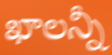
ఖాలన్నీ